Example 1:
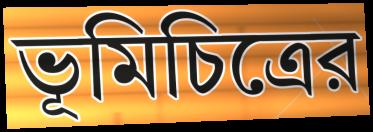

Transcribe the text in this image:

ভূমিচিত্রের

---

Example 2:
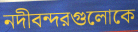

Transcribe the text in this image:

নদীবন্দরগুলোকে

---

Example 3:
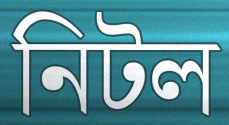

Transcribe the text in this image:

নিটল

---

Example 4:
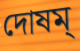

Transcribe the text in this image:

দোষম্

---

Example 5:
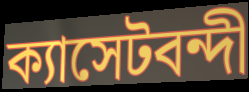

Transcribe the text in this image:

ক্যাসেটবন্দী